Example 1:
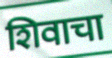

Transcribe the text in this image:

शिवाचा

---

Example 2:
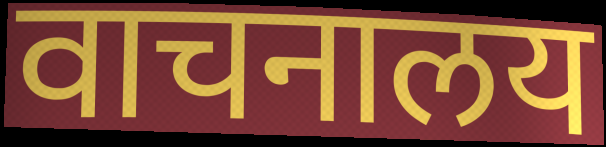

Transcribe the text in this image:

वाचनालय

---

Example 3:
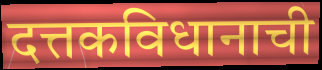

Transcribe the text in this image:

दत्तकविधानाची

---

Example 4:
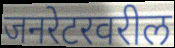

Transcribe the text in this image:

जनरेटरवरील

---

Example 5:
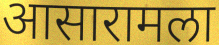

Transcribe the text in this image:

आसारामला